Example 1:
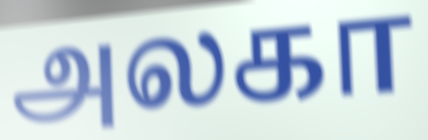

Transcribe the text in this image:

அலகா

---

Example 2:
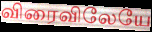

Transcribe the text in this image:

விரைவிலேயே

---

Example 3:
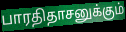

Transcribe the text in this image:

பாரதிதாசனுக்கும்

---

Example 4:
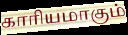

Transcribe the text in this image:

காரியமாகும்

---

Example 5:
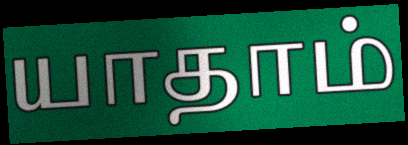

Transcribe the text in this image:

யாதாம்